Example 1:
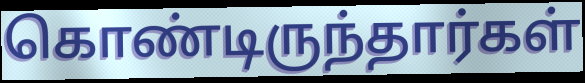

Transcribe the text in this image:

கொண்டிருந்தார்கள்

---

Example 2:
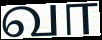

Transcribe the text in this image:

வா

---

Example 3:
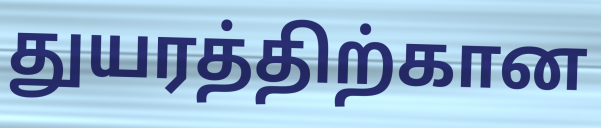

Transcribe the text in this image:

துயரத்திற்கான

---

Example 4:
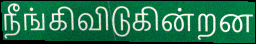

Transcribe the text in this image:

நீங்கிவிடுகின்றன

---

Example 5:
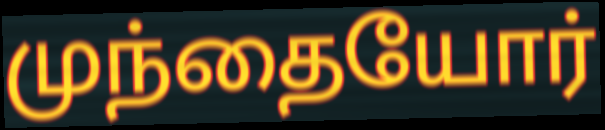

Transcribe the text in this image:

முந்தையோர்